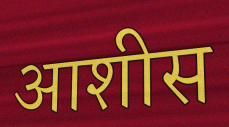
आशीस